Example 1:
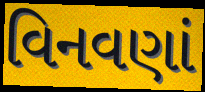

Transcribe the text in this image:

વિનવણાં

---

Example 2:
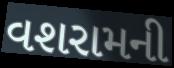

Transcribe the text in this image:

વશરામની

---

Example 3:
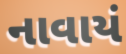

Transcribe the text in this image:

નાવાયં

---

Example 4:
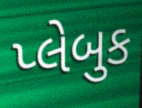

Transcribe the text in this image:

પ્લેબુક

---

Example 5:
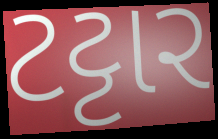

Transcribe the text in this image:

ટટ્ટાર